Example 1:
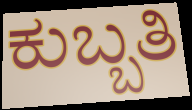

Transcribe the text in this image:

ಕುಬ್ಬತಿ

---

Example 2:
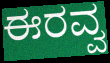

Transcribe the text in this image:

ಈರವ್ವ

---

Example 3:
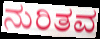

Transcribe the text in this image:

ನುರಿತವ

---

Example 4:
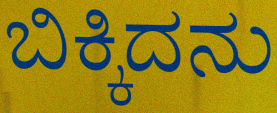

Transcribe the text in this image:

ಬಿಕ್ಕಿದನು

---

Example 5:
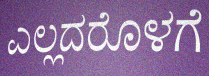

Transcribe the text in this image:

ಎಲ್ಲದರೊಳಗೆ